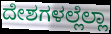
ದೇಶಗಳಲ್ಲೆಲ್ಲಾ